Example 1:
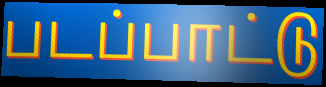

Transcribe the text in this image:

படப்பாட்டு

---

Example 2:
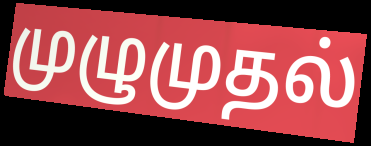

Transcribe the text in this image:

முழுமுதல்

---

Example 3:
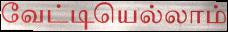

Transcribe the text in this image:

வேட்டியெல்லாம்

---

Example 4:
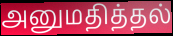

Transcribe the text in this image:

அனுமதித்தல்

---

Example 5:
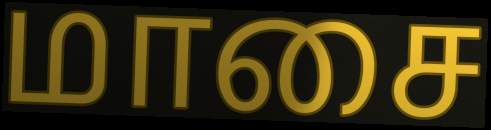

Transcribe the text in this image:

மாசை